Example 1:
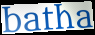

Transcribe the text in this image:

batha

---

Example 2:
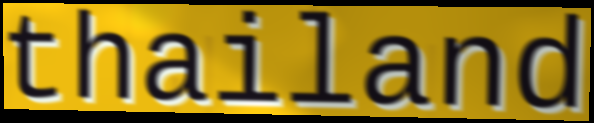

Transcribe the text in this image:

thailand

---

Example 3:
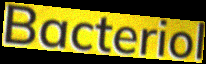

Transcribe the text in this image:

Bacteriol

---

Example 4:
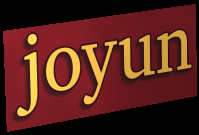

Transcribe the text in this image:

joyun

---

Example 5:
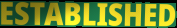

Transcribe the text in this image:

ESTABLISHED